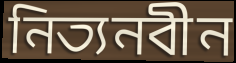
নিত্যনবীন